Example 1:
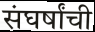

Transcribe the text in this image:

संघर्षांची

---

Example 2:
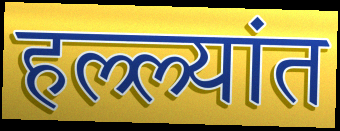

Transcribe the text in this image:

हल्ल्यांत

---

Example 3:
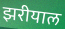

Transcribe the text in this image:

झरीयाल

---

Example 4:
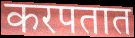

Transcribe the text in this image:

करपतात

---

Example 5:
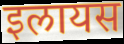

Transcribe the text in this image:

इलायस